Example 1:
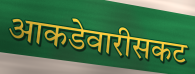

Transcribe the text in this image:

आकडेवारीसकट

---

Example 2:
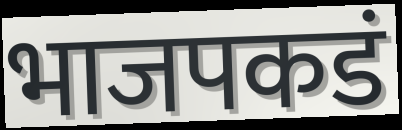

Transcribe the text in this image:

भाजपकडं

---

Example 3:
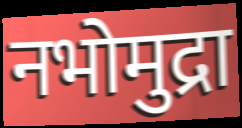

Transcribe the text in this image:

नभोमुद्रा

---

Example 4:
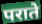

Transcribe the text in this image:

पराते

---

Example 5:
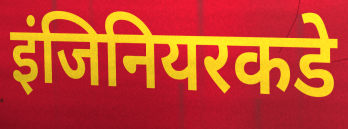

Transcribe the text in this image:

इंजिनियरकडे